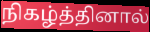
நிகழ்த்தினால்